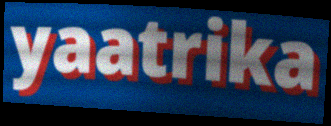
yaatrika